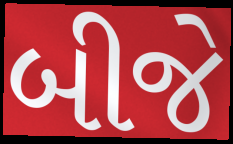
બીજે